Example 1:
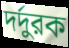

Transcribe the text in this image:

দর্দুরক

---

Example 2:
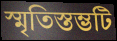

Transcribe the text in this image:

স্মৃতিস্তম্ভটি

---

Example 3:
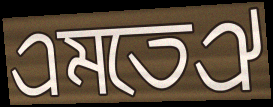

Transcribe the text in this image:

এমতেঐ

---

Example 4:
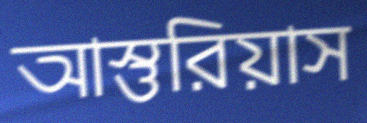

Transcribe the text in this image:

আস্তুরিয়াস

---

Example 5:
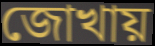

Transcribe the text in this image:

জোখায়